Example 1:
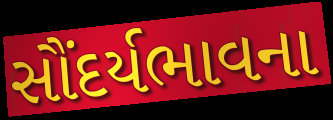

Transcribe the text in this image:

સૌંદર્યભાવના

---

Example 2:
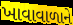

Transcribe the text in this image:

ખાવાવાળાને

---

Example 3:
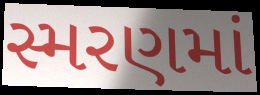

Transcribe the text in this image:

સ્મરણમાં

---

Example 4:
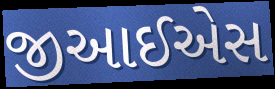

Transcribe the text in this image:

જીઆઈએસ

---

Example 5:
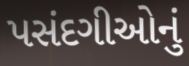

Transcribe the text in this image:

પસંદગીઓનું